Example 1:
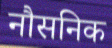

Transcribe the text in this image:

नौसनिक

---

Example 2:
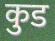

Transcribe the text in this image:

कुड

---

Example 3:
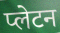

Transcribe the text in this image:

प्लेटन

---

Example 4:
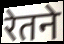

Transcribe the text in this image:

रेतने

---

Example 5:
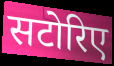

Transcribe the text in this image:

सटोरिए